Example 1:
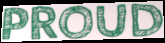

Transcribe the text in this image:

PROUD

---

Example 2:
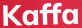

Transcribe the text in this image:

Kaffa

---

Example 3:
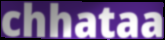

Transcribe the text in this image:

chhataa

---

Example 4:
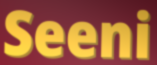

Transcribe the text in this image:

Seeni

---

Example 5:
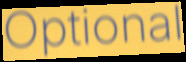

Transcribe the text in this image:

Optional